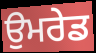
ਉਮਰੇਡ